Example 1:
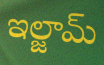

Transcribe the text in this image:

ఇల్జామ్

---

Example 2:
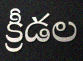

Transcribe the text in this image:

క్రీడల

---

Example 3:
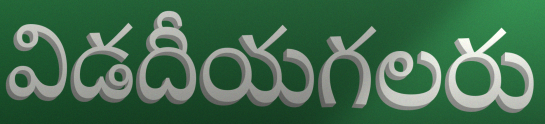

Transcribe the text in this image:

విడదీయగలరు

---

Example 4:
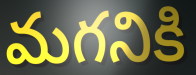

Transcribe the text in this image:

మగనికి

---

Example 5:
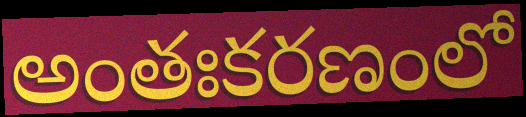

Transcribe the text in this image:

అంతఃకరణంలో